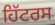
ਹਿੱਟਰਸ